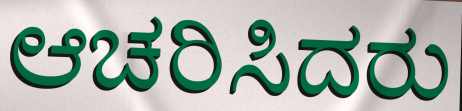
ಆಚರಿಸಿದರು